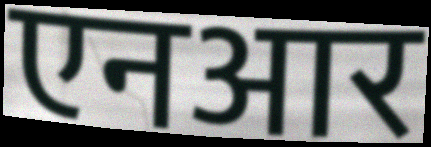
एनआर